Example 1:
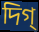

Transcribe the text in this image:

দিগ্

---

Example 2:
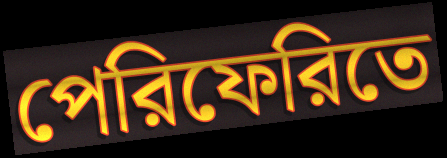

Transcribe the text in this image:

পেরিফেরিতে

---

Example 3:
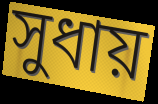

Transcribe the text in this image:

সুধায়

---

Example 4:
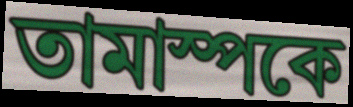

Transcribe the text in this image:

তামাস্পকে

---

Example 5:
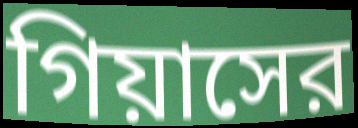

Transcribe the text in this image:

গিয়াসের